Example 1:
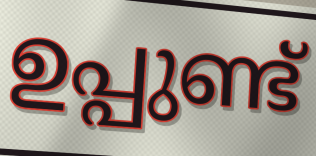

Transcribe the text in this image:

ഉപ്പുണ്ട്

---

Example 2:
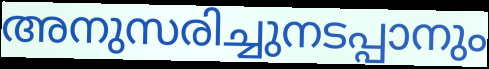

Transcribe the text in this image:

അനുസരിച്ചുനടപ്പാനും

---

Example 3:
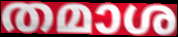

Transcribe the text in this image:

തമാശ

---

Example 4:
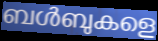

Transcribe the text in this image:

ബൾബുകളെ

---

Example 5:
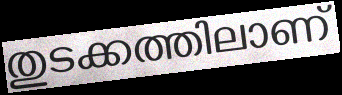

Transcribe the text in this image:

തുടക്കത്തിലാണ്